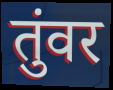
तुंवर